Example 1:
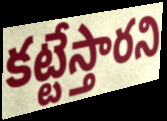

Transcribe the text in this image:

కట్టేస్తారని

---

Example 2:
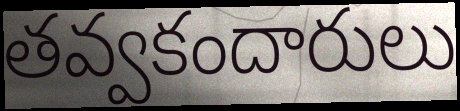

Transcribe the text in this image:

తవ్వకందారులు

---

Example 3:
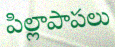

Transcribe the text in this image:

పిల్లాపాపలు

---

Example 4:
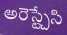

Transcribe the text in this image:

అరెస్ట్చేసి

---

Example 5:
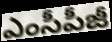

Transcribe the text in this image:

ఎంసీపీజీ